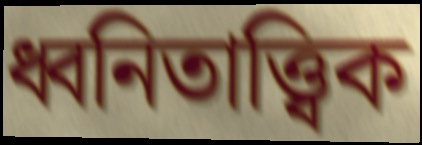
ধ্বনিতাত্ত্বিক